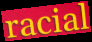
racial